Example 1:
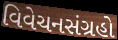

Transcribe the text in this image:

વિવેચનસંગ્રહો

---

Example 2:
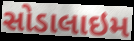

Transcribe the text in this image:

સોડાલાઇમ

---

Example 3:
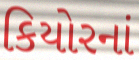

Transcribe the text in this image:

કિયોરનાં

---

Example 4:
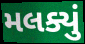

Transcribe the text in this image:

મલક્યું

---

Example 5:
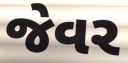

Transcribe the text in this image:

જેવર